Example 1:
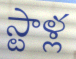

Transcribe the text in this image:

స్టాళ్ల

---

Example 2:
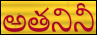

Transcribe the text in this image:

అతనినీ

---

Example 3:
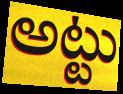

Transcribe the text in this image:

అట్టు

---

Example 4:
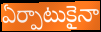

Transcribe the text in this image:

ఏర్పాటుకైనా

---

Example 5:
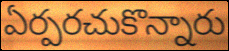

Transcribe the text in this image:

ఏర్పరచుకొన్నారు